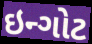
ઇન્ગોટ